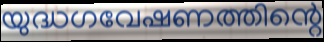
യുദ്ധഗവേഷണത്തിന്റെ